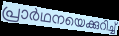
പ്രാർഥനയെക്കുറിച്ച്